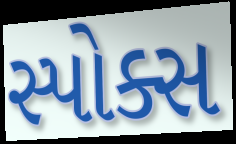
સ્પોક્સ